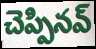
చెప్పినవ్